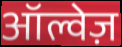
ऑल्वेज़